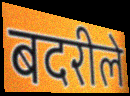
बदरीले